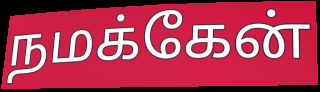
நமக்கேன்